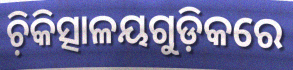
ଚ଼ିକିତ୍ସାଳୟଗୁଡ଼ିକରେ